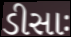
ડીસાઃ